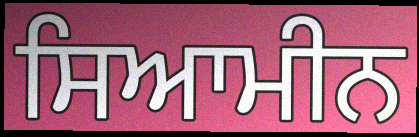
ਸਿਆਮੀਨ